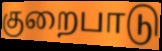
குறைபாடு